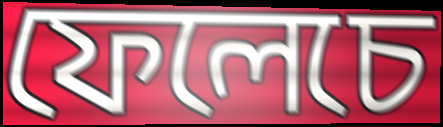
ফেলেচে